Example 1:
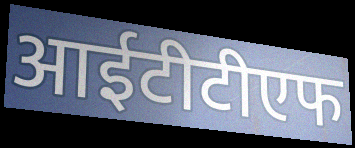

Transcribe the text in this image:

आईटीटीएफ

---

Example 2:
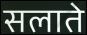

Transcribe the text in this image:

सलाते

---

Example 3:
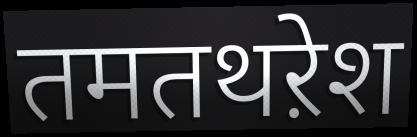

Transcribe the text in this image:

तमतथऱेश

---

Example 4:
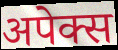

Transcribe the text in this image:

अपेक्स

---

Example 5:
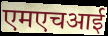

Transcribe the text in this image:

एमएचआई